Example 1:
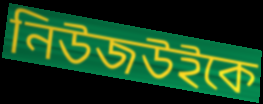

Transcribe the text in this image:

নিউজউইকে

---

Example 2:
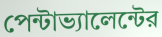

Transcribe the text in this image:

পেন্টাভ্যালেন্টের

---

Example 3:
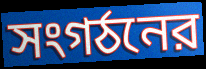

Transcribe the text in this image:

সংগঠনের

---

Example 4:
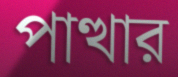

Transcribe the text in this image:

পাত্থার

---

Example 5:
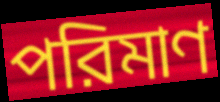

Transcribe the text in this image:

পরিমাণ